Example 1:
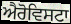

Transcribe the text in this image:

ਐਰੋਵਿਸਟਾ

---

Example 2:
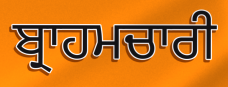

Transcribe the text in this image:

ਬ੍ਰਾਹਮਚਾਰੀ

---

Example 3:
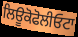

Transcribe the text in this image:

ਲਿਊਕੋਫੋਲੀਓਟਾ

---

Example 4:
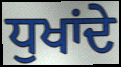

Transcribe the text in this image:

ਧੁਖਾਂਦੇ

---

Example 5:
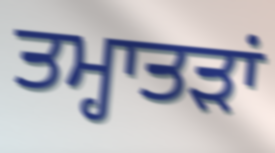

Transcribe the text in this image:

ਤਮ੍ਹਾਤੜਾਂ